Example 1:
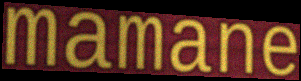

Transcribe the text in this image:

mamane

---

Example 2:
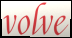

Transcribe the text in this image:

volve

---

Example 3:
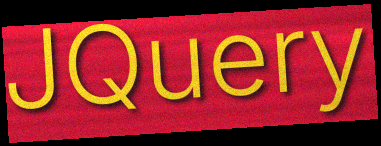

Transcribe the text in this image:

JQuery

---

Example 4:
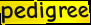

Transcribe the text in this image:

pedigree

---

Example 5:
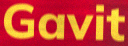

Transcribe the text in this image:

Gavit